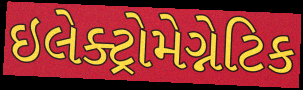
ઇલેક્ટ્રોમેગ્નેટિક